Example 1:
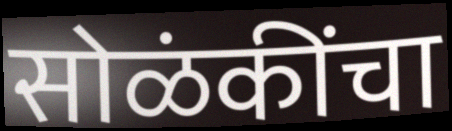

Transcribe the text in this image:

सोळंकींचा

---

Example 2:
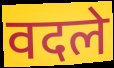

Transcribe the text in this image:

वदले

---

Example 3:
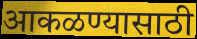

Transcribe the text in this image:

आकळण्यासाठी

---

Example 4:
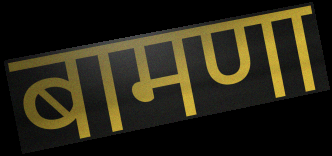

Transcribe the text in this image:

बामणा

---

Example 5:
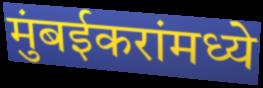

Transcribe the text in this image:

मुंबईकरांमध्ये